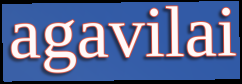
agavilai